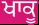
ਖਾਕੂ